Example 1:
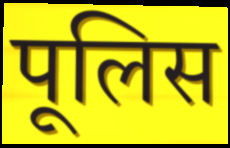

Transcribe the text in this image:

पूलिस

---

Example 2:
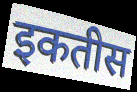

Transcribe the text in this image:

इकतीस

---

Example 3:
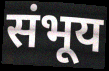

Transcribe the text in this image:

संभूय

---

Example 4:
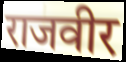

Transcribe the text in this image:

राजवीर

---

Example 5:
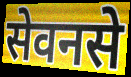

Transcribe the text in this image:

सेवनसे